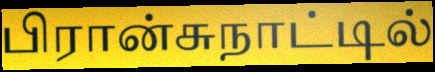
பிரான்சுநாட்டில்